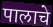
पालाचे